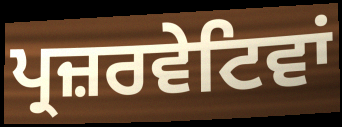
ਪ੍ਰਜ਼ਰਵੇਟਿਵਾਂ